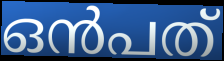
ഒൻപത്